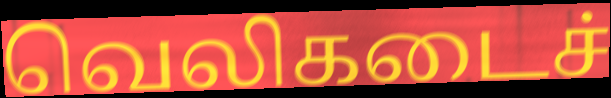
வெலிகடைச்